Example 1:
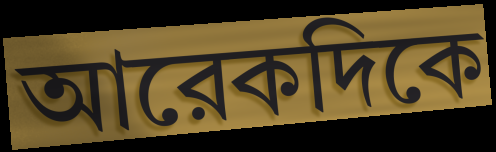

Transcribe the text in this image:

আরেকদিকে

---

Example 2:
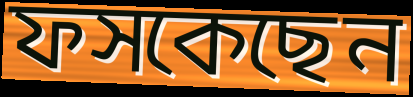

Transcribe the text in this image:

ফসকেছেন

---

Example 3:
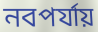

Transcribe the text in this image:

নবপর্যায়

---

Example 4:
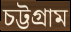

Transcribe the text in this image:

চট্টগ্রাম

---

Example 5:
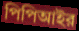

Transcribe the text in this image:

পিপিআইর